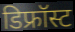
डिफ्रॉस्ट